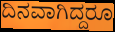
ದಿನವಾಗಿದ್ದರೂ